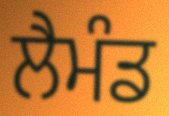
ਲੈਮੰਡ